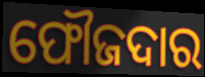
ଫୌଜଦାର